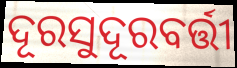
ଦୂରସୁଦୂରବର୍ତ୍ତୀ